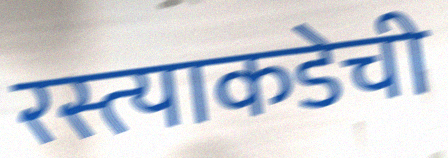
रस्त्याकडेची